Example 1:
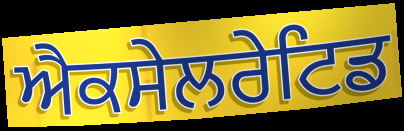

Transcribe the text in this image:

ਐਕਸੇਲਰੇਟਿਡ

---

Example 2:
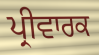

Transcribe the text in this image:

ਪ੍ਰੀਵਾਰਕ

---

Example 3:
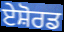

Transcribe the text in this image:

ਏਸ਼ੋਰਡ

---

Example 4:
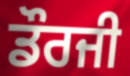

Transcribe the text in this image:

ਡੌਰਜੀ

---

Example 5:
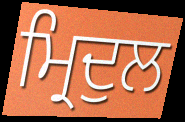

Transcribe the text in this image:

ਮ੍ਰਿਦੁਲ